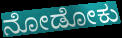
ನೋಡೋಕು